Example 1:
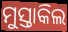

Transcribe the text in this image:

ମୁସ୍ତାକିଲ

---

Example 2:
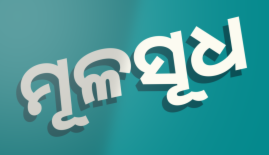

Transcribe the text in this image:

ମୂଳସୂଧ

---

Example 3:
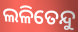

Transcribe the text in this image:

ଲଳିତେନ୍ଦୁ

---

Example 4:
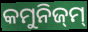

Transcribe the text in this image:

କମୁନିଜ୍‌ମ୍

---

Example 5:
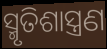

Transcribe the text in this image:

ସ୍ମୃତିଶାସ୍ତ୍ରଣ